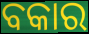
ବକାର